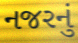
નજરનું